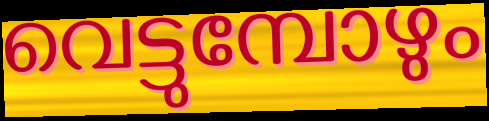
വെട്ടുമ്പോഴും